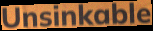
Unsinkable